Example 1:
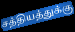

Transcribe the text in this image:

சத்தியத்துக்கு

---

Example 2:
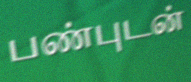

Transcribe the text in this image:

பண்புடன்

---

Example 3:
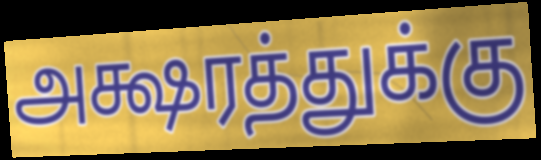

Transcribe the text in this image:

அக்ஷரத்துக்கு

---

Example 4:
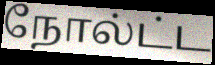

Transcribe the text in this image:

நோல்ட்ட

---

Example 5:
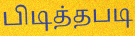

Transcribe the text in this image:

பிடித்தபடி